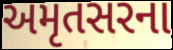
અમૃતસરના